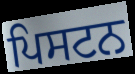
ਪਿਸਟਨ